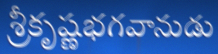
శ్రీకృష్ణభగవానుడు